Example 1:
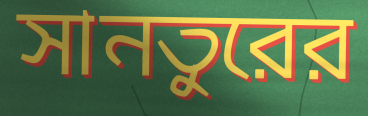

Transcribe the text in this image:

সানতুরের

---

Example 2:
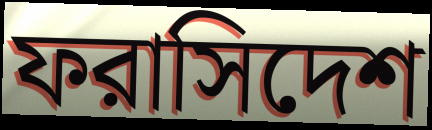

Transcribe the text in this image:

ফরাসিদেশ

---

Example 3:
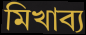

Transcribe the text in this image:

মিখাব্য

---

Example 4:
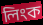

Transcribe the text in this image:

লিংক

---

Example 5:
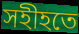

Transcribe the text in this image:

সহীহতে